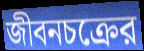
জীবনচক্রের